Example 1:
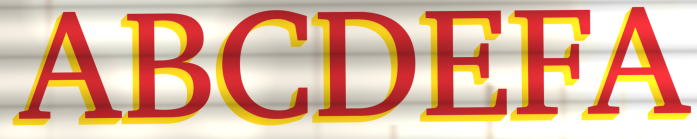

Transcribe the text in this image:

ABCDEFA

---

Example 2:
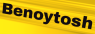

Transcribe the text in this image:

Benoytosh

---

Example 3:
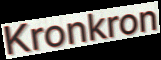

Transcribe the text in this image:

Kronkron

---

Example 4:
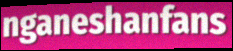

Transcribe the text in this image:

nganeshanfans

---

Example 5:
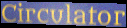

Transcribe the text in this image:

Circulator